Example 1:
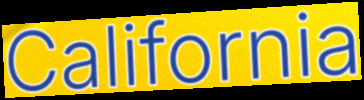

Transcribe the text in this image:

California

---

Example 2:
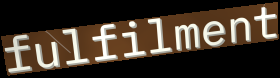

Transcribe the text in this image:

fulfilment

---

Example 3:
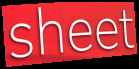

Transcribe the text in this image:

sheet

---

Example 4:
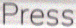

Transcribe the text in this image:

Press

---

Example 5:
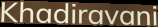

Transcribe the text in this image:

Khadiravani